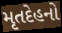
મૃતદેહનો